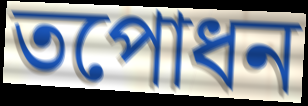
তপোধন